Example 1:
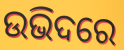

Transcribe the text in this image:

ଉଭିଦରେ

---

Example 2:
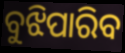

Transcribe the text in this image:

ବୁଝିପାରିବ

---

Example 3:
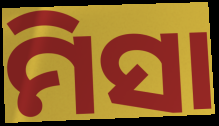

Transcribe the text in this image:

ମିସା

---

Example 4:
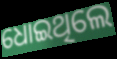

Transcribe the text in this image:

ଧୋଇଥିଲେ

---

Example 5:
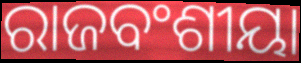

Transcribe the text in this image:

ରାଜବଂଶୀୟା